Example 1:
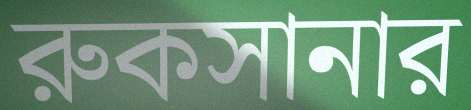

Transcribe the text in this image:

রুকসানার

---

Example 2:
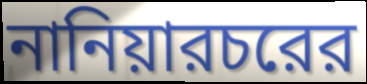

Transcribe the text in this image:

নানিয়ারচরের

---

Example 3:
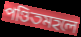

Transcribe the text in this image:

পণ্ডিতমহলে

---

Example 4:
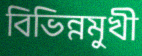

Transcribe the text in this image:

বিভিন্নমুখী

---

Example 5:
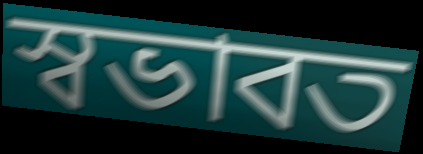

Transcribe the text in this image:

স্বভাবত